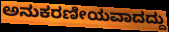
ಅನುಕರಣೀಯವಾದದ್ದು